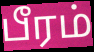
பீரம்